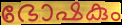
ഭോഷകും